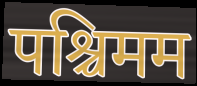
पश्चिमम